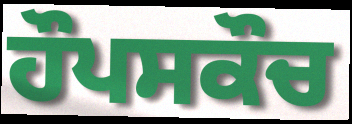
ਹੌਪਸਕੌਚ